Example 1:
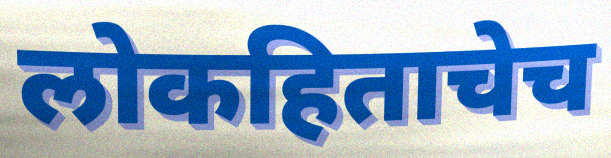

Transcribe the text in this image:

लोकहिताचेच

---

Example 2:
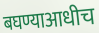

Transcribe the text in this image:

बघण्याआधीच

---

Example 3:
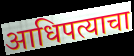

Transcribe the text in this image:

आधिपत्याचा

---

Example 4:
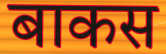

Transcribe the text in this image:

बाकस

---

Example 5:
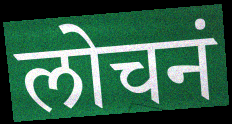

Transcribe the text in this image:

लोचनं